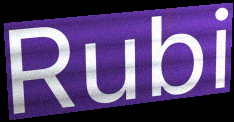
Rubi